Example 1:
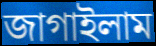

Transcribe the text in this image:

জাগাইলাম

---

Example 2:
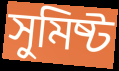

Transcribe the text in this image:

সুমিষ্ট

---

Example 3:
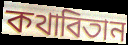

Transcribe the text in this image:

কথাবিতান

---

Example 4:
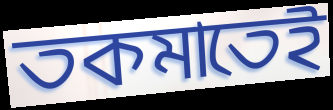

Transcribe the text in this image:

তকমাতেই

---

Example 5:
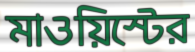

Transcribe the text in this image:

মাওয়িস্টের